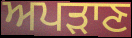
ਅਪੜਾਣ